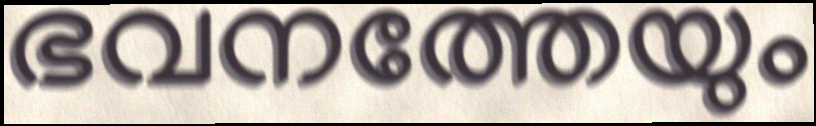
ഭവനത്തേയും